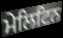
ਮੇਲਿਟਿਨ